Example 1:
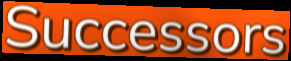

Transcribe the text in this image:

Successors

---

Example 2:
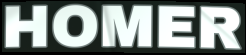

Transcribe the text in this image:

HOMER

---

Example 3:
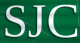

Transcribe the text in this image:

SJC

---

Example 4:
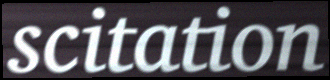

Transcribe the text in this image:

scitation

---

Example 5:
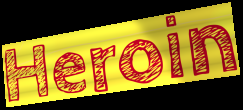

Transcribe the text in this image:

Heroin